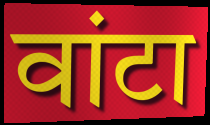
वांटा